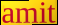
amit